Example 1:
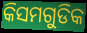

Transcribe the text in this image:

କିସମଗୁଡିକ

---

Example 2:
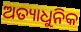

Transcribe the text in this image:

ଅତ୍ୟାଧୁନିକ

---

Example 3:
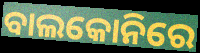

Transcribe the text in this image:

ବାଲକୋନିରେ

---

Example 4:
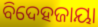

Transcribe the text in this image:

ବିଦେହଜାୟା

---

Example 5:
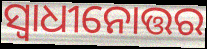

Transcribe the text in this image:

ସ୍ୱାଧୀନୋତ୍ତର